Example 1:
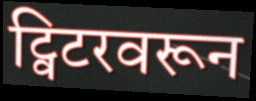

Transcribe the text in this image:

ट्विटरवरून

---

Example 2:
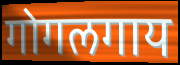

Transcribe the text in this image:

गोगलगाय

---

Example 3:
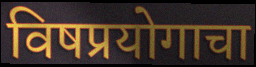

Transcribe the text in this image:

विषप्रयोगाचा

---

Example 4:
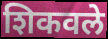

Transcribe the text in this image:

शिकवले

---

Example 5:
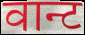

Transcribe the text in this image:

वान्ट